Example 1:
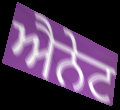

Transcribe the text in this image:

ਐਨੇਟ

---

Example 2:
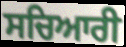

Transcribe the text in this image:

ਸਚਿਆਰੀ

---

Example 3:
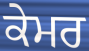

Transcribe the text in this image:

ਕੇਮਰ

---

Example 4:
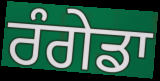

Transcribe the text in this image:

ਰੰਗੇਡਾ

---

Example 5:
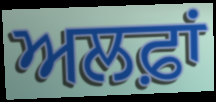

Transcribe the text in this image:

ਅਲਫ਼ਾਂ